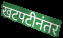
खटपटीनंतर